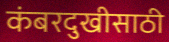
कंबरदुखीसाठी